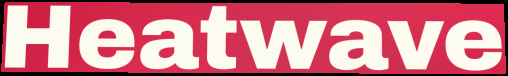
Heatwave